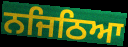
ਨਜਿਠਿਆ